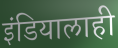
इंडियालाही